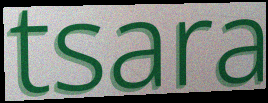
tsara